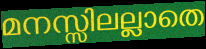
മനസ്സിലല്ലാതെ